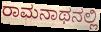
ರಾಮನಾಥನಲ್ಲಿ